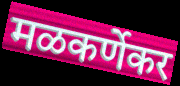
मळकर्णेकर